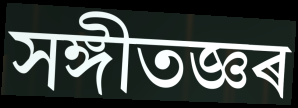
সঙ্গীতজ্ঞৰ